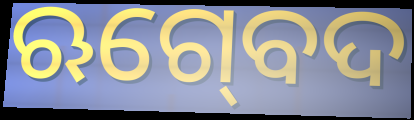
ଋଗ୍‍ବେଦ